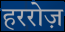
हररोज़